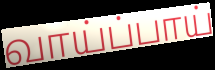
வாய்ப்பாய்